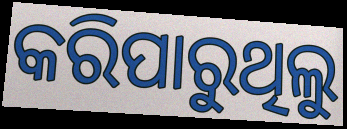
କରିପାରୁଥିଲୁ